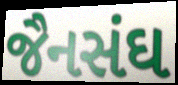
જૈનસંઘ